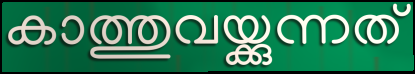
കാത്തുവയ്ക്കുന്നത്